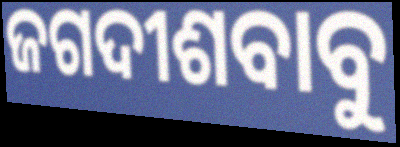
ଜଗଦୀଶବାବୁ